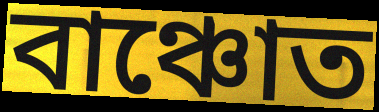
বাঞ্চোত